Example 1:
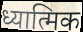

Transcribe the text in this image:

ध्यात्मिक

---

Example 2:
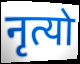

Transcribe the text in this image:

नृत्यो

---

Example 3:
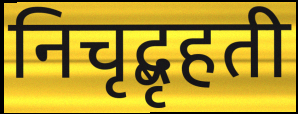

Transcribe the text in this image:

निचृद्बृहती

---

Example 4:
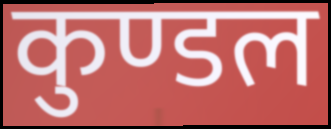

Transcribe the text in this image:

कुण्डल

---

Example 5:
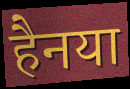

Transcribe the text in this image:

हैनया